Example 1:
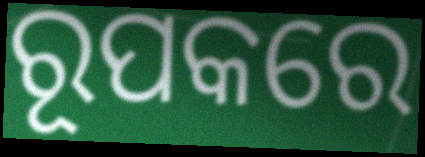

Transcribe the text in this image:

ରୂପକରେ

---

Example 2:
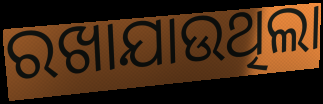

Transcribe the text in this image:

ରଖାଯାଉଥିଲା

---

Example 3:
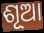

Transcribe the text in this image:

ଶୂଆ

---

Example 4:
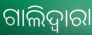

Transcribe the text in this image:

ଗାଲିଦ୍ଵାରା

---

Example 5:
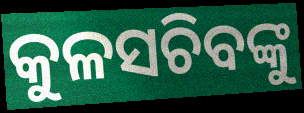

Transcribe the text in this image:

କୁଳସଚିବଙ୍କୁ